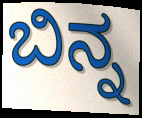
ಬಿನ್ನ